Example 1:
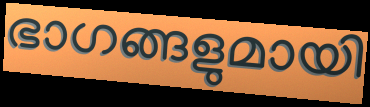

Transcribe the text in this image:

ഭാഗങ്ങളുമായി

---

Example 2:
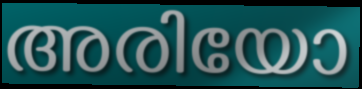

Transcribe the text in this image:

അരിയോ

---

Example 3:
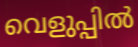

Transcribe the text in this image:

വെളുപ്പിൽ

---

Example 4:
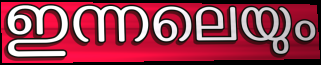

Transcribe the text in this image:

ഇന്നലെയും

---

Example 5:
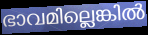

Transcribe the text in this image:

ഭാവമില്ലെങ്കിൽ